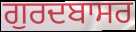
ਗੁਰਦਬਾਸਰ